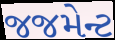
જજમેન્ટ